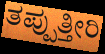
ತಪ್ಪುತ್ತೀರಿ